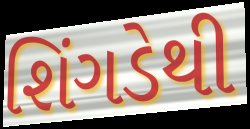
શિંગડેથી